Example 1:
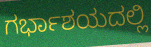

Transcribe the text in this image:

ಗರ್ಭಾಶಯದಲ್ಲಿ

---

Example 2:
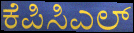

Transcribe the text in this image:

ಕೆಪಿಸಿಎಲ್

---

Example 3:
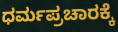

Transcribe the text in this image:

ಧರ್ಮಪ್ರಚಾರಕ್ಕೆ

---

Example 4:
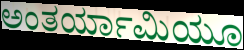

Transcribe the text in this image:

ಅಂತರ್ಯಾಮಿಯೂ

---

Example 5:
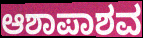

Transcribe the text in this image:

ಆಶಾಪಾಶವ